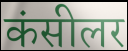
कंसीलर